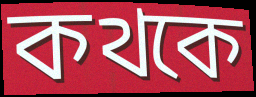
কথকে